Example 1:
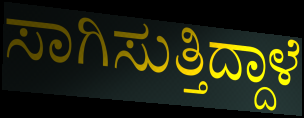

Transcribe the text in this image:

ಸಾಗಿಸುತ್ತಿದ್ದಾಳೆ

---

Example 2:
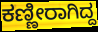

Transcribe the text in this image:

ಕಣ್ಣೀರಾಗಿದ್ದ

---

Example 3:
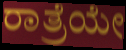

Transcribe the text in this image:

ರಾತ್ರೆಯೇ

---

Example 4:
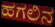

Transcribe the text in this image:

ಹಗಲಿನ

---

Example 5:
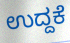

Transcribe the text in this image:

ಉದ್ದಕೆ